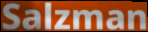
Salzman